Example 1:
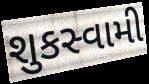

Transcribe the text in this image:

શુકસ્વામી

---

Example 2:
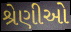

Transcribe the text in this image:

શ્રેણીઓ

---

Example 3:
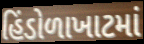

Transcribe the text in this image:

હિંડોળાખાટમાં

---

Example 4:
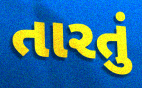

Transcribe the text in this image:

તારતું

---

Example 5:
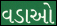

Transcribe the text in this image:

વડાઓ